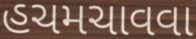
હચમચાવવા